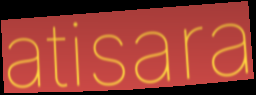
atisara